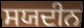
ਸਯਦੀਨ